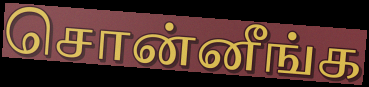
சொன்னீங்க